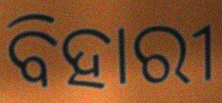
ବିହାରୀ